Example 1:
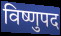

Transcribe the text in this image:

विष्णुपद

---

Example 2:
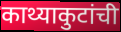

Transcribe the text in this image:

काथ्याकुटांची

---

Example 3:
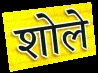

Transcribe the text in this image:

शोले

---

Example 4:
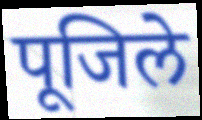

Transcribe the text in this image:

पूजिले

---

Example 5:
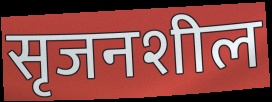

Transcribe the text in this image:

सृजनशील